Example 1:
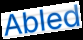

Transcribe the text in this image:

Abled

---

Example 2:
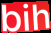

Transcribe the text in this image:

bih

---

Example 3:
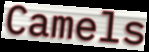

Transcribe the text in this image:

Camels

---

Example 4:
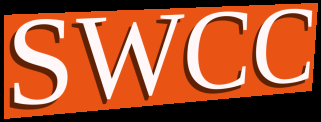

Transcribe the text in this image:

SWCC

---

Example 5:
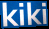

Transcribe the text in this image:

kiki